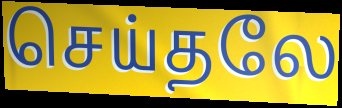
செய்தலே